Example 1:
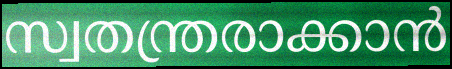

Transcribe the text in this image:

സ്വതന്ത്രരാക്കാൻ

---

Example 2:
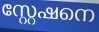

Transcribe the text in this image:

സ്റ്റേഷനെ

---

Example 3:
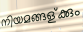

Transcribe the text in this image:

നിയമങ്ങള്ക്കും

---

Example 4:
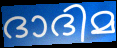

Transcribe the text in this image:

ദാദിമ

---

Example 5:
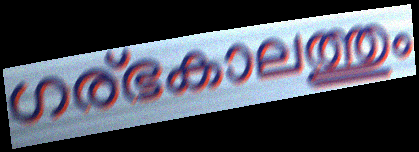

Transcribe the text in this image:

ഗര്ഭകാലത്തും